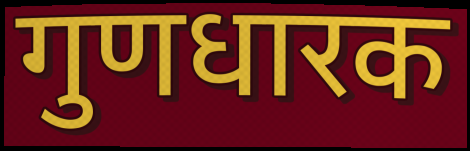
गुणधारक